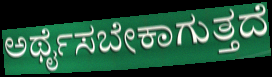
ಅರ್ಥೈಸಬೇಕಾಗುತ್ತದೆ